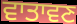
ਵਾਤਾਵਣ